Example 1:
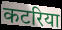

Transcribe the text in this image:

कटरिया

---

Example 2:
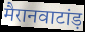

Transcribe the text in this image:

मैरानवाटांड़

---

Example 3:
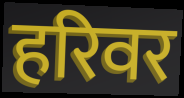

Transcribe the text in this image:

हरिवर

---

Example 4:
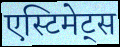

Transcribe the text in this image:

एस्टिमेट्स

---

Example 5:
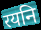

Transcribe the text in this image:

रयनि